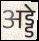
अड्डे